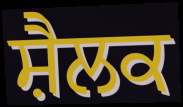
ਸ਼ੈਲਕ